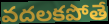
వదలకపోతే